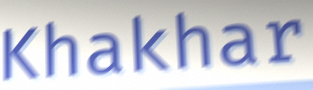
Khakhar